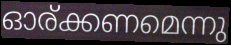
ഓര്ക്കണമെന്നു